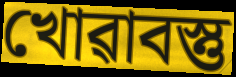
খোৱাবস্তু